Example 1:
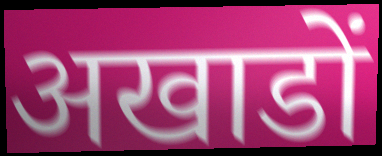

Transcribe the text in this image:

अखाडों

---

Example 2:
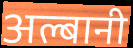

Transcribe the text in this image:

अल्बानी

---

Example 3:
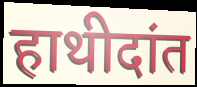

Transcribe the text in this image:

हाथीदांत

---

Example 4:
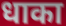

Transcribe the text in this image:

धाका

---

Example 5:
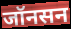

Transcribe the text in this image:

जॉनसन